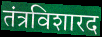
तंत्रविशारद